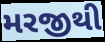
મરજીથી